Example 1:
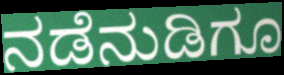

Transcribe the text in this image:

ನಡೆನುಡಿಗೂ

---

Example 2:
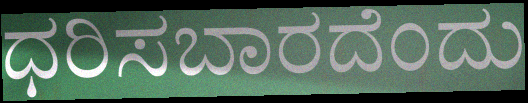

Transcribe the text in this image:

ಧರಿಸಬಾರದೆಂದು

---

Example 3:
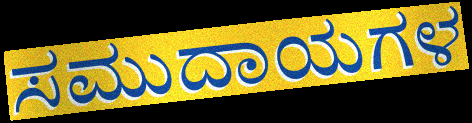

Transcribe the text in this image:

ಸಮುದಾಯಗಳ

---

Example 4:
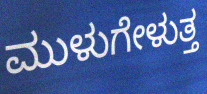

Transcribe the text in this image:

ಮುಳುಗೇಳುತ್ತ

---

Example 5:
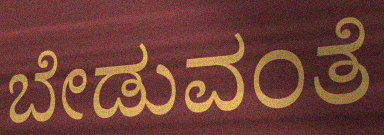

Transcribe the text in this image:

ಬೇಡುವಂತೆ